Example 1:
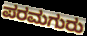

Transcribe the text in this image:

ಪರಮಗುರು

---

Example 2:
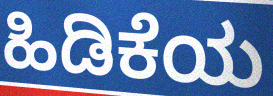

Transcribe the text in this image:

ಹಿಡಿಕೆಯ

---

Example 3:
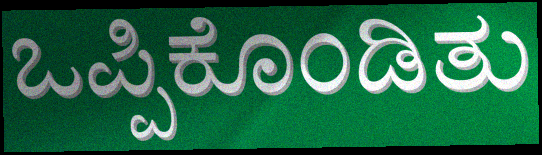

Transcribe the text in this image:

ಒಪ್ಪಿಕೊಂಡಿತು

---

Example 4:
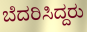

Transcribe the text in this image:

ಬೆದರಿಸಿದ್ದರು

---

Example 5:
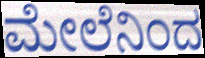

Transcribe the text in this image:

ಮೇಲೆನಿಂದ